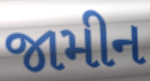
જામીન